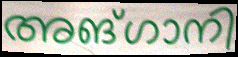
അങ്ഗാനി